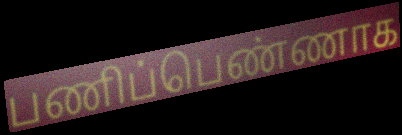
பணிப்பெண்ணாக